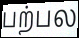
பற்பல